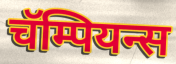
चॅम्पियन्स